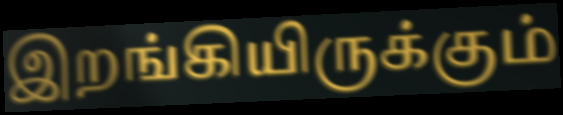
இறங்கியிருக்கும்